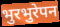
भुरभुरेपन